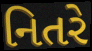
નિતરે